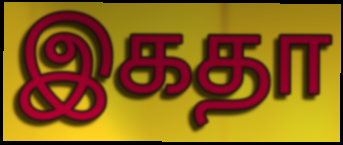
இகதா